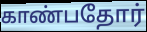
காண்பதோர்